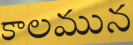
కాలమున